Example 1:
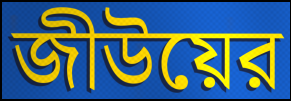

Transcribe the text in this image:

জীউয়ের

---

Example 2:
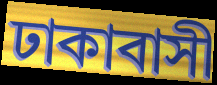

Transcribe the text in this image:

ঢাকাবাসী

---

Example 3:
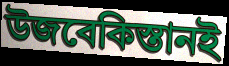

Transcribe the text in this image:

উজবেকিস্তানই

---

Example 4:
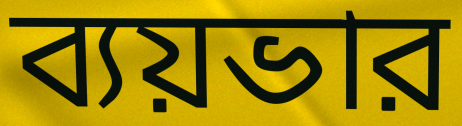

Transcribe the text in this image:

ব্যয়ভার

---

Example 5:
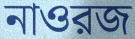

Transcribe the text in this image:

নাওরজ